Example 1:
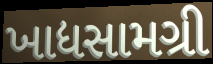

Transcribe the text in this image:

ખાદ્યસામગ્રી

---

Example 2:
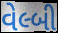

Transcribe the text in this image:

વેલ્બી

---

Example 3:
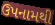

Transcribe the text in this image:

ઉપનામથી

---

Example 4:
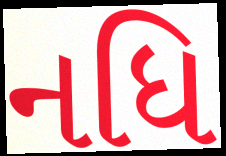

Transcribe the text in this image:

નધિ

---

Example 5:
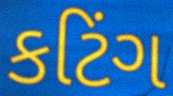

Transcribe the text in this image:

કટિંગ